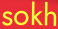
sokh